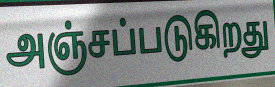
அஞ்சப்படுகிறது